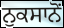
ਨੁਕਸਾਨੋਂ